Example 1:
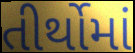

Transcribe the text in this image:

તીર્થોમાં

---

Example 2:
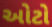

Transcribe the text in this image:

ઓટો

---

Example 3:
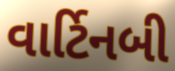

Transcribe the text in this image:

વાર્ટિનબી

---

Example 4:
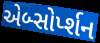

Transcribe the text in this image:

એબ્સોર્પ્શન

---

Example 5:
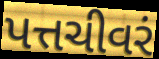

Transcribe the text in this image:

પત્તચીવરં